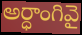
అర్ధాంగివై